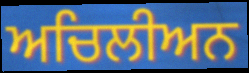
ਅਚਿਲੀਅਨ